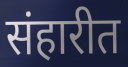
संहारीत